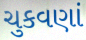
ચુકવણાં